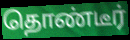
தொண்டீர்